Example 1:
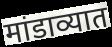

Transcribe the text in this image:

मांडाव्यात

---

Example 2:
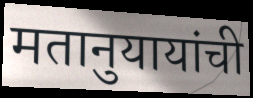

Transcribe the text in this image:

मतानुयायांची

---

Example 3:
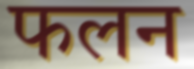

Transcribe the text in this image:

फलन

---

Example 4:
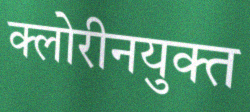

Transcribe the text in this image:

क्लोरीनयुक्त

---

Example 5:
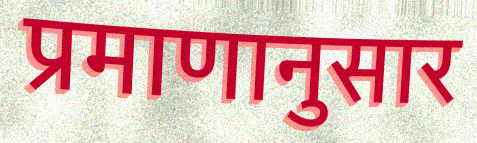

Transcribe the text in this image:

प्रमाणानुसार